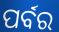
ପର୍ବର